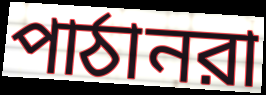
পাঠানরা